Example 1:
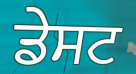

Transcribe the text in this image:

ਡੇਸਟ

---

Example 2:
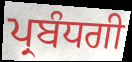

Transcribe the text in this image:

ਪ੍ਰਬੰਧਗੀ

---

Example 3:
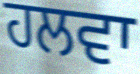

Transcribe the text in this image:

ਹਲਵਾ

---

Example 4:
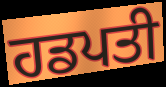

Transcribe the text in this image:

ਹਡਪਤੀ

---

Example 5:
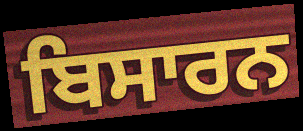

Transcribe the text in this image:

ਬਿਸਾਰਨ